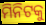
ମିନିଟକୁ